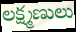
లక్ష్మణులు